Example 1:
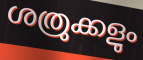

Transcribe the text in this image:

ശത്രുക്കളും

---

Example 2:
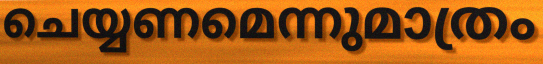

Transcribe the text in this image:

ചെയ്യണമെന്നുമാത്രം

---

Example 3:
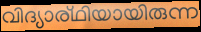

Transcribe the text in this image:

വിദ്യാര്ഥിയായിരുന്ന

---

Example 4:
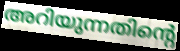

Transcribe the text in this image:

അറിയുന്നതിന്റെ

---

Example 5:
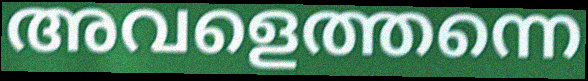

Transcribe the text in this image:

അവളെത്തന്നെ